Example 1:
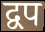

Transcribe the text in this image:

द्वप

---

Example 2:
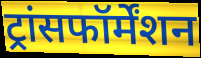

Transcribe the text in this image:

ट्रांसफॉर्मेंशन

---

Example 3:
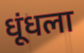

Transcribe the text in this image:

धूंधला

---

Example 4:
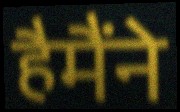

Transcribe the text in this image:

हैमैंने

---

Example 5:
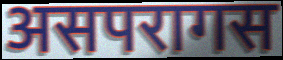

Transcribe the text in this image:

असपरागस